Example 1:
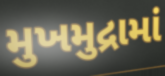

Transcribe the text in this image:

મુખમુદ્રામાં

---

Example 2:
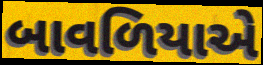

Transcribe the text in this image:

બાવળિયાએ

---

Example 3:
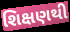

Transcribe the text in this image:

શિક્ષણથી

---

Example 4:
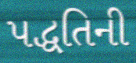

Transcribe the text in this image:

પદ્ધતિની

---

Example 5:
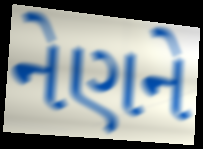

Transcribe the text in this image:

નેણને